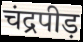
चंद्रपीड़